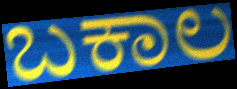
ಬಕಾಲ